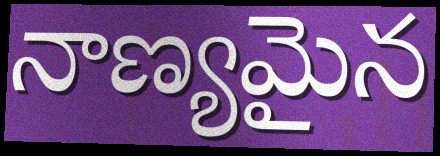
నాణ్యమైన